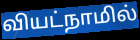
வியட்நாமில்